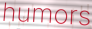
humors